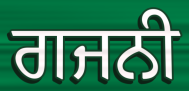
ਗਜਨੀ